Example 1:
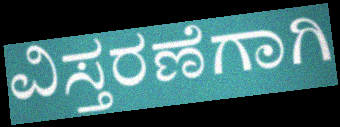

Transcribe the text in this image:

ವಿಸ್ತರಣೆಗಾಗಿ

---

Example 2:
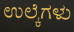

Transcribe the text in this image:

ಉಲ್ಕೆಗಳು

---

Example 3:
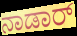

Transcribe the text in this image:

ನಾಡಾರ್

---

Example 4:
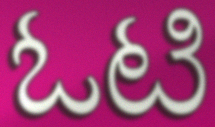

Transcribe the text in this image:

ಓಟಿ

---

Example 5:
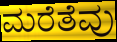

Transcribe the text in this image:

ಮರೆತೆವು